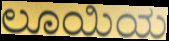
ಲೂಯಿಯ